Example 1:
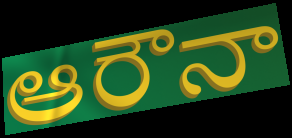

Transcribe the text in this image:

ఆరౌనా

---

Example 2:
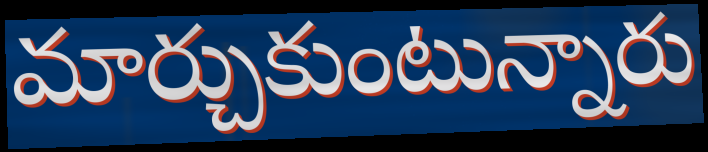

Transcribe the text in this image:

మార్చుకుంటున్నారు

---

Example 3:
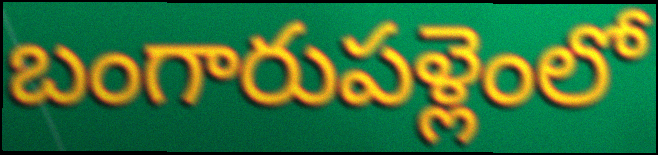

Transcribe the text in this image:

బంగారుపళ్లెంలో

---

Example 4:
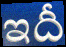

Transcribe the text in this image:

ఇదీ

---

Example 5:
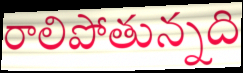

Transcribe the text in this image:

రాలిపోతున్నది